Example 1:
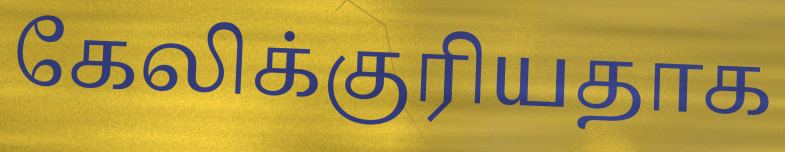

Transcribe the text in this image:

கேலிக்குரியதாக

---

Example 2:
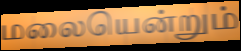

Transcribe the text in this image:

மலையென்றும்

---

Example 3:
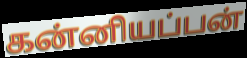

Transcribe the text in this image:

கன்னியப்பன்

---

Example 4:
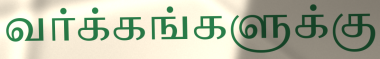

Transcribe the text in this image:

வர்க்கங்களுக்கு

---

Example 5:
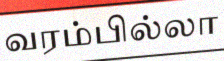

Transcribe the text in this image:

வரம்பில்லா